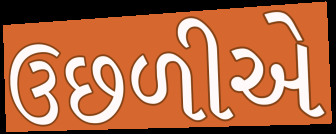
ઉછળીએ